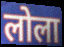
लोला